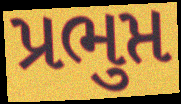
પ્રભુપ્ત